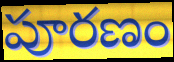
పూరణం